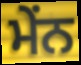
ਮੇਂਨ